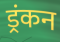
ड्रंकन